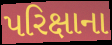
પરિક્ષાના